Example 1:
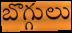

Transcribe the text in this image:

బొగ్గులు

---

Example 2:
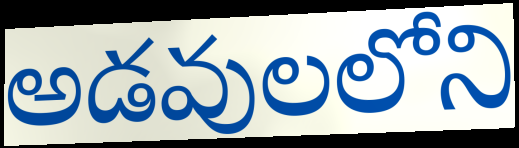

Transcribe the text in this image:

అడవులలోని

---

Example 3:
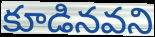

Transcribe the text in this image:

కూడినవని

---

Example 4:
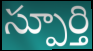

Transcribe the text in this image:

స్పూర్తి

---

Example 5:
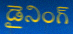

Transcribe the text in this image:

డైనింగ్